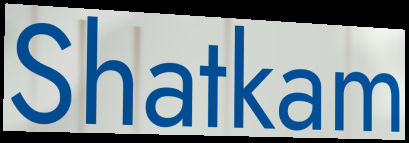
Shatkam